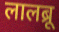
लालब्रू